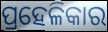
ପ୍ରହେଳିକାର